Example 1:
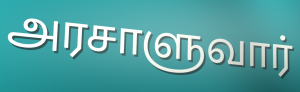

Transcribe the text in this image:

அரசாளுவார்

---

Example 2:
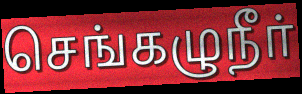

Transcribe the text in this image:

செங்கழுநீர்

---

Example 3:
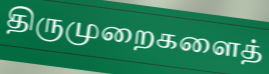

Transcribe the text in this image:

திருமுறைகளைத்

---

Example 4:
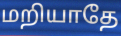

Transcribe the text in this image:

மறியாதே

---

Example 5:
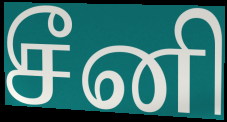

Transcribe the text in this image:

சீனி